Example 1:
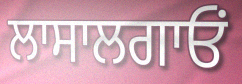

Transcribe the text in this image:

ਲਾਸਾਲਗਾਓਂ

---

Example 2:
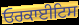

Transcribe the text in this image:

ਓਰਕਾਈਟਿਸ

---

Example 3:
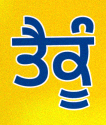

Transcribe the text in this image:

ਤੈਕੂੰ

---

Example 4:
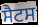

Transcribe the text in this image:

ਸੈਟਸ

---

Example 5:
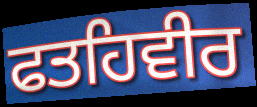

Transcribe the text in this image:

ਫਤਹਿਵੀਰ